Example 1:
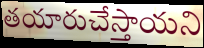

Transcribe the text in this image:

తయారుచేస్తాయని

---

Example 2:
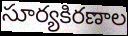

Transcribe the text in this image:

సూర్యకిరణాల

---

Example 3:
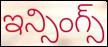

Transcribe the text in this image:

ఇన్సింగ్స్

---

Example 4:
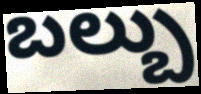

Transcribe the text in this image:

బల్బు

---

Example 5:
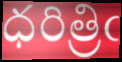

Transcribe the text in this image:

ధరిత్రిఁ